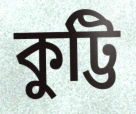
কুট্টি